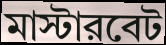
মাস্টারবেট